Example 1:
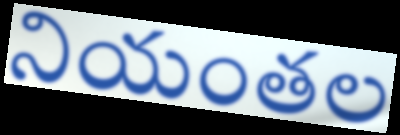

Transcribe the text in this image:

నియంతల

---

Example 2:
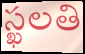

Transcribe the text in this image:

స్ఖలతి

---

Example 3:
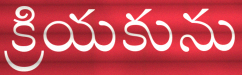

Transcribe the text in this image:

క్రియకును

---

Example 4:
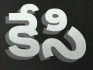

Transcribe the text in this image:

కేసి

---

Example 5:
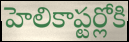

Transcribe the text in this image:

హెలికాప్టర్లోకి